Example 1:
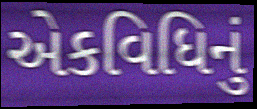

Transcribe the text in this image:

એકવિધિનું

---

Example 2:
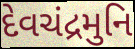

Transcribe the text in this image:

દેવચંદ્રમુનિ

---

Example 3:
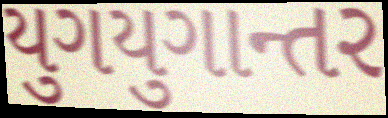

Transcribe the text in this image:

યુગયુગાન્તર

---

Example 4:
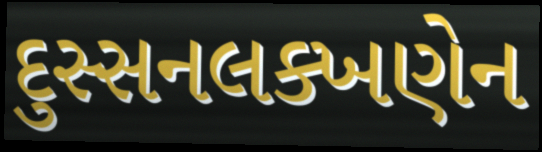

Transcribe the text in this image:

દુસ્સનલક્ખણેન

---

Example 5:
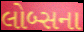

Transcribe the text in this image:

લોબ્સના